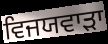
ਵਿਜਯਵਾੜਾ